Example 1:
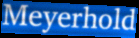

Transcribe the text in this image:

Meyerhold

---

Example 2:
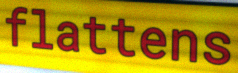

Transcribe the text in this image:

flattens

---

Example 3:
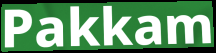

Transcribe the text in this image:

Pakkam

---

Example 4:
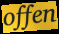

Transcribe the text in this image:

offen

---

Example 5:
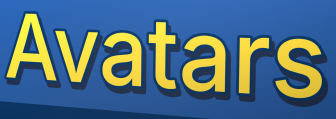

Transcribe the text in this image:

Avatars